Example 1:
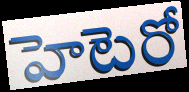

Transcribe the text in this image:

హెటెరో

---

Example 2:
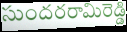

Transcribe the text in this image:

సుందరరామిరెడ్డి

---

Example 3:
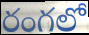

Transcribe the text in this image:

రంగలో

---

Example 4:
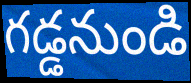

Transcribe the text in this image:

గడ్డనుండి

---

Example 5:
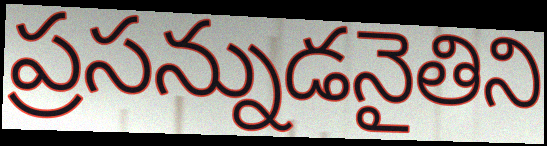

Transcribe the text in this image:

ప్రసన్నుడనైతిని